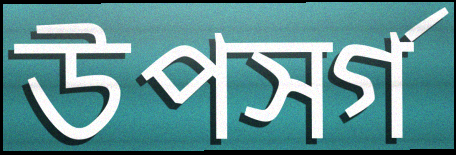
উপসৰ্গ